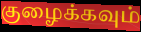
குழைக்கவும்